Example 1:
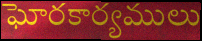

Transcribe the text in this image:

ఘోరకార్యములు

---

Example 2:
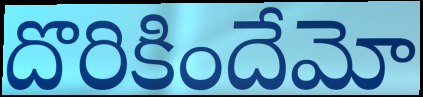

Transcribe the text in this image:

దొరికిందేమో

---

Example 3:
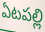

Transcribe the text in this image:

ఏటపల్లి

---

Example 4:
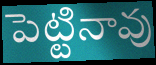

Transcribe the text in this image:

పెట్టినావు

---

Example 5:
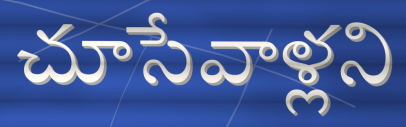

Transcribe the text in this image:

చూసేవాళ్లని